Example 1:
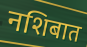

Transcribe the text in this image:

नशिबात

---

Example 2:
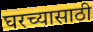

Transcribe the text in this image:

घरच्यासाठी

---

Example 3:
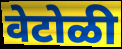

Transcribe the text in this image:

वेटोळी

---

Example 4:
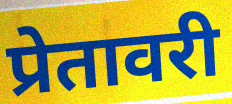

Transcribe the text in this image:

प्रेतावरी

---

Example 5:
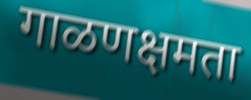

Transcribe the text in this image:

गाळणक्षमता